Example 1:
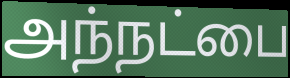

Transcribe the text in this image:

அந்நட்பை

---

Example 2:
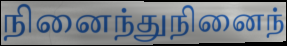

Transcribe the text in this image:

நினைந்துநினைந்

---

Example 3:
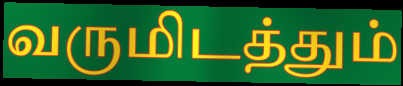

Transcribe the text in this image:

வருமிடத்தும்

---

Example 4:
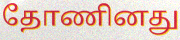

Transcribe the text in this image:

தோணினது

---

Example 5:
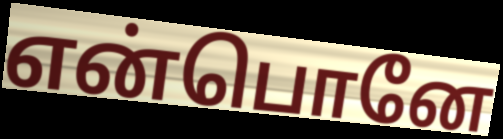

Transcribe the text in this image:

என்பொனே